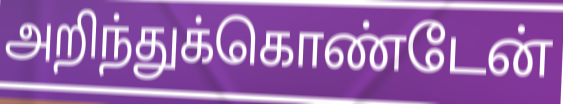
அறிந்துக்கொண்டேன்